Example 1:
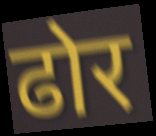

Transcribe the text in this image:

ढोर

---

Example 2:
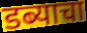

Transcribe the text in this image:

डब्याचा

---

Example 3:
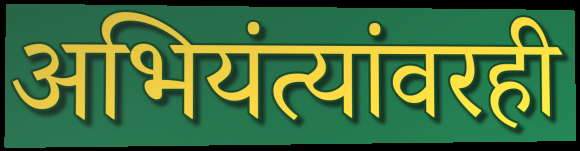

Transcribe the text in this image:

अभियंत्यांवरही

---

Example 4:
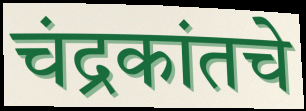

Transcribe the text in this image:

चंद्रकांतचे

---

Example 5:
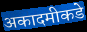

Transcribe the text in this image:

अकादमीकडे